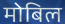
मोबिल